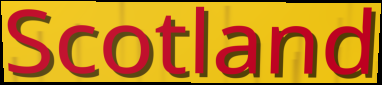
Scotland